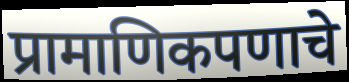
प्रामाणिकपणाचे